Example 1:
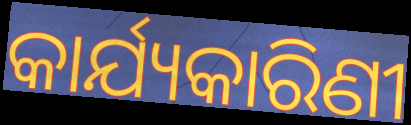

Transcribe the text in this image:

କାର୍ଯ୍ୟକାରିଣୀ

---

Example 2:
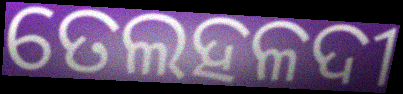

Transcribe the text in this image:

ତେଲହଳଦୀ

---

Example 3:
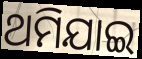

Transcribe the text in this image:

ଥମିଯାଇ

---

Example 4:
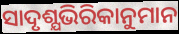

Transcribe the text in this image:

ସାଦୃଶ୍ଯଭିରିକାନୁମାନ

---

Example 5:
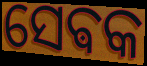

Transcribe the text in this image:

ସେଵକ